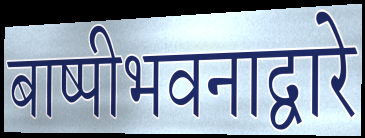
बाष्पीभवनाद्वारे